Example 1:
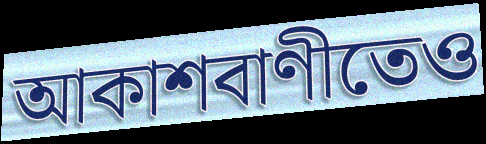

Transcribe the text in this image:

আকাশবাণীতেও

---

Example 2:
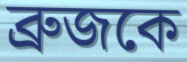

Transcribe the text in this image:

ব্রুজকে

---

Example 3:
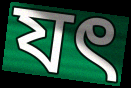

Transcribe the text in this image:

যৎ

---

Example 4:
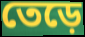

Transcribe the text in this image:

তেড়ে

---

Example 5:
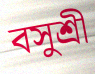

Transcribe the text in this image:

বসুশ্রী